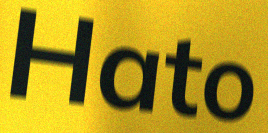
Hato